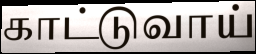
காட்டுவாய்